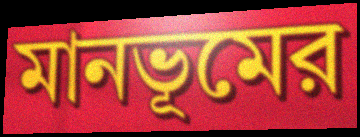
মানভূমের